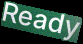
Ready